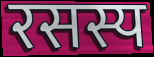
रसस्य